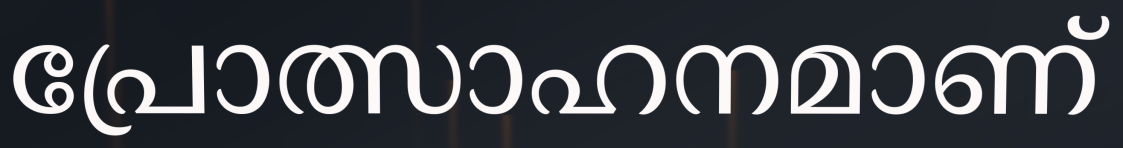
പ്രോത്സാഹനമാണ്